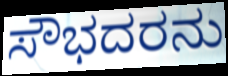
ಸೌಭದರನು